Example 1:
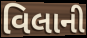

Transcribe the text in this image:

વિલાની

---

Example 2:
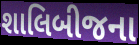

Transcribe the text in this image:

શાલિબીજના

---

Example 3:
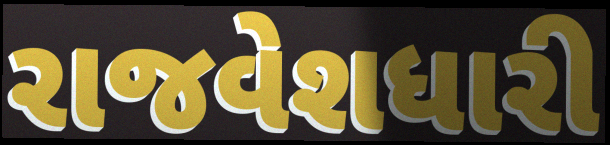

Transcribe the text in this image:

રાજવેશધારી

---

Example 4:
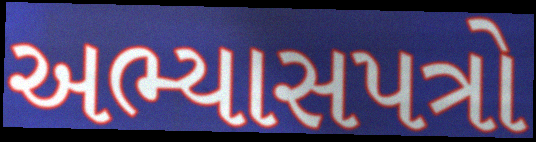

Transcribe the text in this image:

અભ્યાસપત્રો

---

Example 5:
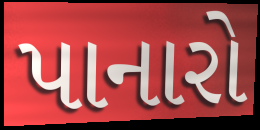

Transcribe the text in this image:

પાનારો